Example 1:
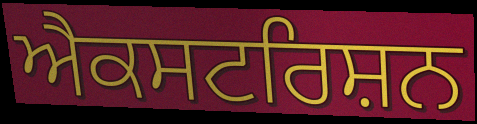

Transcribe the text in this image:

ਐਕਸਟਰਿਸ਼ਨ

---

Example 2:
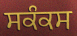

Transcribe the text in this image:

ਸਕੰਕਸ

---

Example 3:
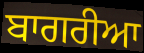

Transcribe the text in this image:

ਬਾਗਰੀਆ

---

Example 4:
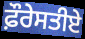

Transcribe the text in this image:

ਫ਼ੌਰੇਸਤੀਏ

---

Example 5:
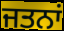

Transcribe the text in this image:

ਜਤਨਾਂ